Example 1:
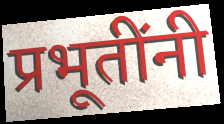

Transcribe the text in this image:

प्रभूतींनी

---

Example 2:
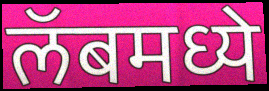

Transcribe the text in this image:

लॅबमध्ये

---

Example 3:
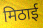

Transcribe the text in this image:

मिठाई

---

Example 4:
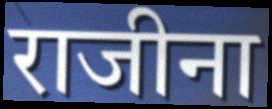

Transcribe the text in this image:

राजीना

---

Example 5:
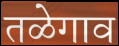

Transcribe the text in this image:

तळेगाव